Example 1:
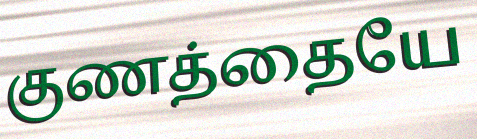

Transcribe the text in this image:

குணத்தையே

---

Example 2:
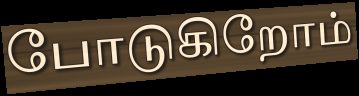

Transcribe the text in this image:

போடுகிறோம்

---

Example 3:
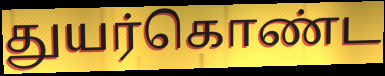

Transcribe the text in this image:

துயர்கொண்ட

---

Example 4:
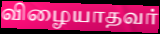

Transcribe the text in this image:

விழையாதவர்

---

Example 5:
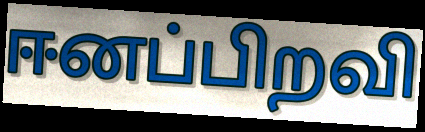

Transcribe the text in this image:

ஈனப்பிறவி